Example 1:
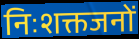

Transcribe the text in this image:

निःशक्तजनों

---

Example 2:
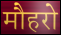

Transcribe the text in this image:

मौहरो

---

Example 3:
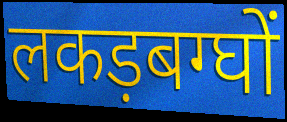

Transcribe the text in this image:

लकड़बग्घों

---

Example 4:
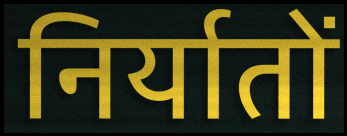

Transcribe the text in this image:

निर्यातों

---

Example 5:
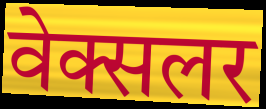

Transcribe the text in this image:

वेक्सलर